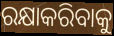
ରକ୍ଷାକରିବାକୁ